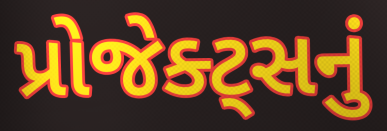
પ્રોજેક્ટ્સનું